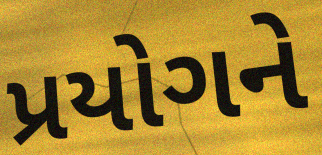
પ્રયોગને